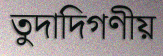
তুদাদিগণীয়